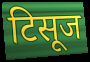
टिसूज